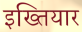
इख्तियार